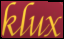
klux